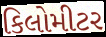
કિલોમીટર